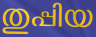
തുപ്പിയ